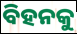
ବିହନକୁ